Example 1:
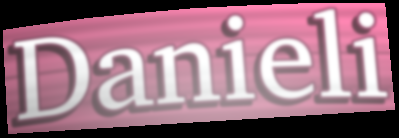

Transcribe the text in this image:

Danieli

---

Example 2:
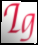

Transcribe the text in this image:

Ig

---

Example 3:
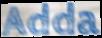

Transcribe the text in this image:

Adda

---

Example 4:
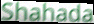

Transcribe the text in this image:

Shahada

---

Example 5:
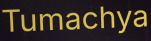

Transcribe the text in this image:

Tumachya